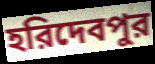
হরিদেবপুর